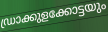
ഡ്രാക്കുളക്കോട്ടയും